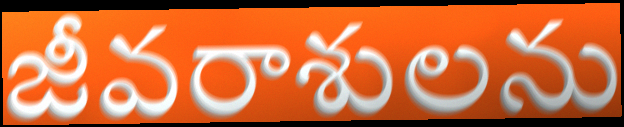
జీవరాశులను